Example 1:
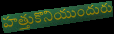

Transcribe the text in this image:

హత్తుకొనియుందురు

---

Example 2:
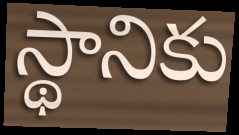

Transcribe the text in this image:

స్థానికు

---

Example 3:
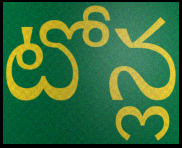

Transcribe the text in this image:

టోన్ల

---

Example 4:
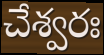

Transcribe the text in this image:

చేశ్వరః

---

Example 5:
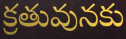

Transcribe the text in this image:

క్రతువునకు